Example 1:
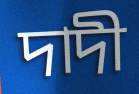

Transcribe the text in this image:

দাদী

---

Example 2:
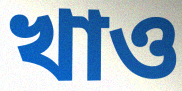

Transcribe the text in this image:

খাও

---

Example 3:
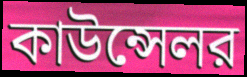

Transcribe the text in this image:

কাউন্সেলর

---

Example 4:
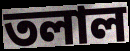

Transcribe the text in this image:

তলাল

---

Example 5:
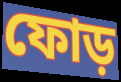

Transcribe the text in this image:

ফোড়